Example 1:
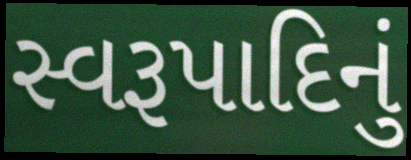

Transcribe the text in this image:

સ્વરૂપાદિનું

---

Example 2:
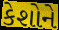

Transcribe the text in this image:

કેશોને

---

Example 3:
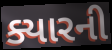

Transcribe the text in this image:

ક્યારની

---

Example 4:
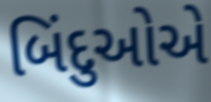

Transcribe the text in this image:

બિંદુઓએ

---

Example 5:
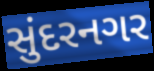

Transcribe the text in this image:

સુંદરનગર